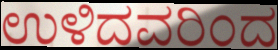
ಉಳಿದವರಿಂದ